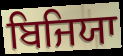
ਬਿਜਿਯਾ